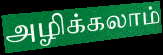
அழிக்கலாம்